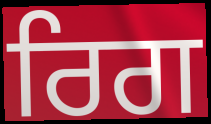
ਰਿਗ